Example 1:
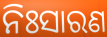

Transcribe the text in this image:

ନିଃସାରଣ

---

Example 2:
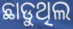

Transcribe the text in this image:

ଛାଡୁଥିଲ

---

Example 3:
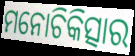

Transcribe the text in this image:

ମନୋଚିକିତ୍ସାର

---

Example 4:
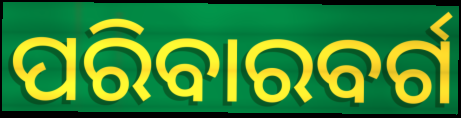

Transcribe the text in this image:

ପରିବାରବର୍ଗ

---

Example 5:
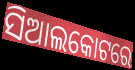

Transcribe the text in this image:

ସିଆଲକୋଟରେ